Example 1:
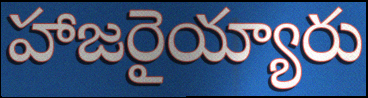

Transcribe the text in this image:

హాజరైయ్యారు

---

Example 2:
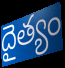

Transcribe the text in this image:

దైత్యం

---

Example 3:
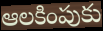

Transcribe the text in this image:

ఆలకింపుకు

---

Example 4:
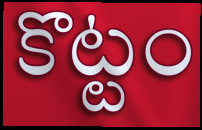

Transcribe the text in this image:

కొట్టం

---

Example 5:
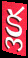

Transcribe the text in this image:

క్ల